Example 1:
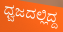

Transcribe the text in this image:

ಧ್ವಜದಲ್ಲಿದ್ದ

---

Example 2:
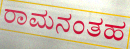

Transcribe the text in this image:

ರಾಮನಂತಹ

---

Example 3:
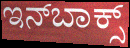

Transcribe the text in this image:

ಇನ್‍ಬಾಕ್ಸ್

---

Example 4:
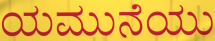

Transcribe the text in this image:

ಯಮುನೆಯು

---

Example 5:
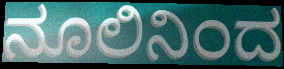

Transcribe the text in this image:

ನೂಲಿನಿಂದ